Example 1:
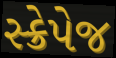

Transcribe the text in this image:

સ્ક્રેપેજ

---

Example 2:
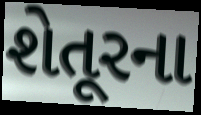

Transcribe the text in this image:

શેતૂરના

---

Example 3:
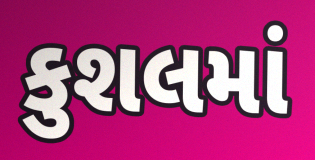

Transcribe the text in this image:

કુશલમાં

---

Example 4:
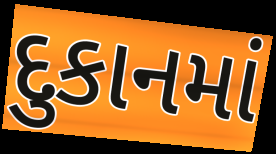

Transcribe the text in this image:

દુકાનમાં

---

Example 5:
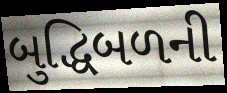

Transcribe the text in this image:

બુદ્ધિબળની